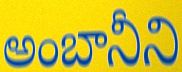
అంబానీని